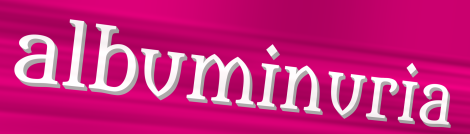
albuminuria